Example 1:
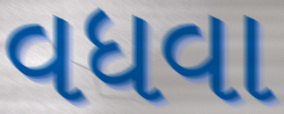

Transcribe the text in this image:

વધવા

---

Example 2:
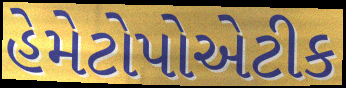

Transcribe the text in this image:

હેમેટોપોએટીક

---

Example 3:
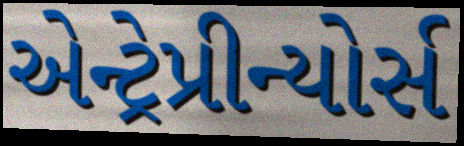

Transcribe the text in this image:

એન્ટ્રેપ્રીન્યોર્સ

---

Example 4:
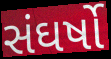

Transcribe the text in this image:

સંઘર્ષો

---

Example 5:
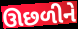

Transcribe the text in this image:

ઊછળીને